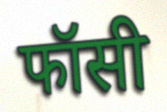
फॉसी